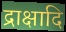
द्राक्षादि